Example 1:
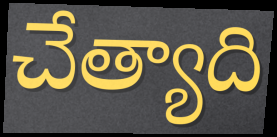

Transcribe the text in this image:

చేత్యాది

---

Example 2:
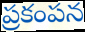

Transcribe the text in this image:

ప్రకంపన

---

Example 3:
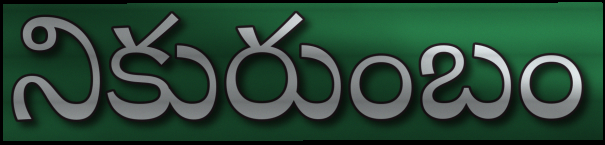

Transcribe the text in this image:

నికురుంబం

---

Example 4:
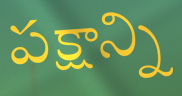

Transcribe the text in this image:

పక్షాన్ని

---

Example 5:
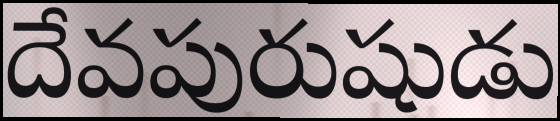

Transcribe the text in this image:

దేవపురుషుడు